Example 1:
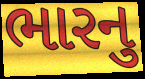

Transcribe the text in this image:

ભારનુ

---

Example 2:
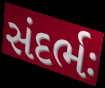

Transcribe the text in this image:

સંદર્ભઃ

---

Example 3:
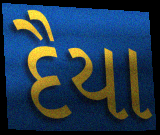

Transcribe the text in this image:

દૈયા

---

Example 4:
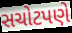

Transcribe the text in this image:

સચોટપણે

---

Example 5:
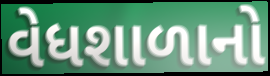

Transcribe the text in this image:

વેધશાળાનો